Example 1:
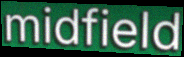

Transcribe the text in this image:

midfield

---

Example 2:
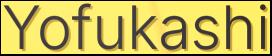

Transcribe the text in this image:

Yofukashi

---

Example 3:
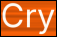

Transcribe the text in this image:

Cry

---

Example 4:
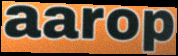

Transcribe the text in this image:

aarop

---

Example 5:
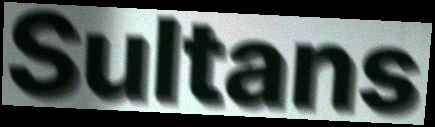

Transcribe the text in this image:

Sultans